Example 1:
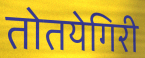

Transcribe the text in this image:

तोतयेगिरी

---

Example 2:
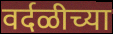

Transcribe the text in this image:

वर्दळीच्या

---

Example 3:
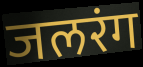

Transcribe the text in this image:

जलरंग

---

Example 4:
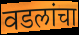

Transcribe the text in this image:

वडलांचा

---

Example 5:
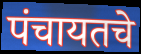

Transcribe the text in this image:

पंचायतचे